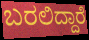
ಬರಲಿದ್ದಾರೆ